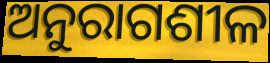
ଅନୁରାଗଶୀଳ